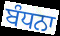
ਬੰਧਨਾ